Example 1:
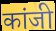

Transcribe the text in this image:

कांजी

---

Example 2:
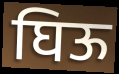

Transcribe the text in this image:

घिऊ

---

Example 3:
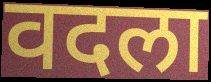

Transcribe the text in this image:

वदला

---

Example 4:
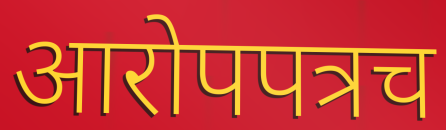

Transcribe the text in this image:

आरोपपत्रच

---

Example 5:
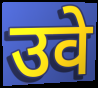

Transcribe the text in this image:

उवे